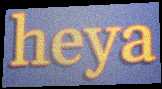
heya